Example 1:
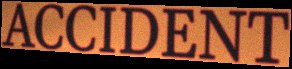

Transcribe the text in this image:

ACCIDENT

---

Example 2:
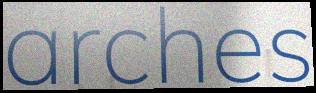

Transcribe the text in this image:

arches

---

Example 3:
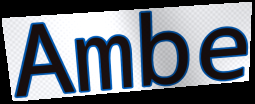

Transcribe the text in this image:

Ambe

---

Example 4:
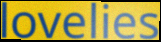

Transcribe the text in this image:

lovelies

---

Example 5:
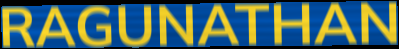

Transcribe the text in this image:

RAGUNATHAN